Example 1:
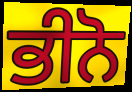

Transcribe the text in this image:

ਭੀਨੋ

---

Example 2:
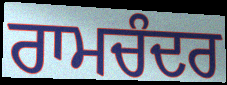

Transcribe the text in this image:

ਰਾਮਚੰਦਰ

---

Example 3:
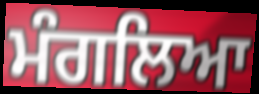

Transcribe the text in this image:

ਮੰਗਲਿਆ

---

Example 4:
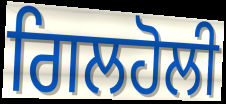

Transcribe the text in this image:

ਗਿਲਹੋਲੀ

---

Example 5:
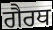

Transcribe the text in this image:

ਗੈਰਥ